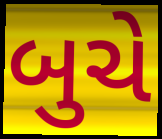
બુચે